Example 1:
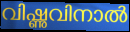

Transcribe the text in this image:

വിഷ്ണുവിനാൽ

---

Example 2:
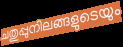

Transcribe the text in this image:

ചതുപ്പുനിലങ്ങളുടെയും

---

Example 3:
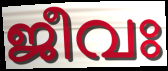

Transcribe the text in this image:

ജീവഃ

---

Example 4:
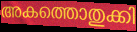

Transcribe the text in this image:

അകത്തൊതുക്കി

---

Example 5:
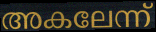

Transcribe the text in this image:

അകലേന്ന്